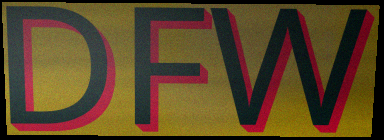
DFW